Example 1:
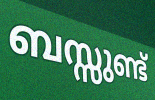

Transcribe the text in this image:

ബസ്സുണ്ട്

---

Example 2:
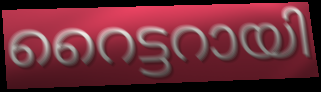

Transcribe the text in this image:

റൈട്ടറായി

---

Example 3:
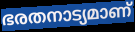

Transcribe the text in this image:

ഭരതനാട്യമാണ്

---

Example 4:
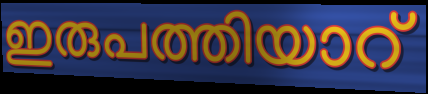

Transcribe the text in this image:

ഇരുപത്തിയാറ്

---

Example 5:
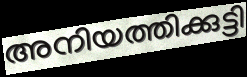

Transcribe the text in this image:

അനിയത്തിക്കുട്ടി